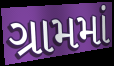
ગ્રામમાં